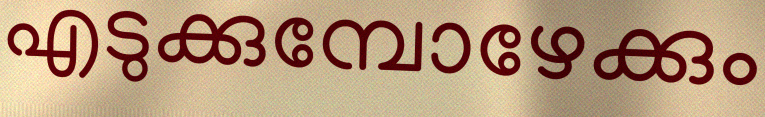
എടുക്കുമ്പോഴേക്കും